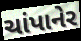
ચાંપાનેર